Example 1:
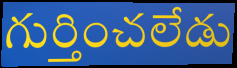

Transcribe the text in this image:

గుర్తించలేడు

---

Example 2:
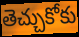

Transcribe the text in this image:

తెచ్చుకోకు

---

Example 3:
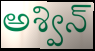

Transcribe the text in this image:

అశ్విన్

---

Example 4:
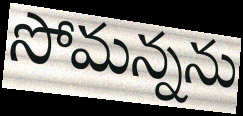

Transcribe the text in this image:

సోమన్నను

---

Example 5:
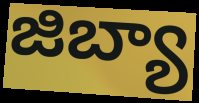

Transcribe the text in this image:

జిబ్యా